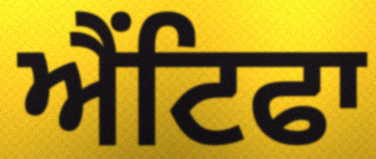
ਐਂਟਿਫਾ